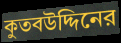
কুতবউদ্দিনের